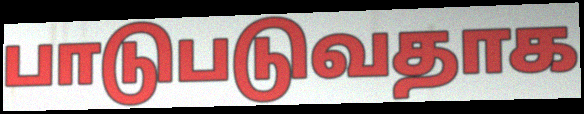
பாடுபடுவதாக